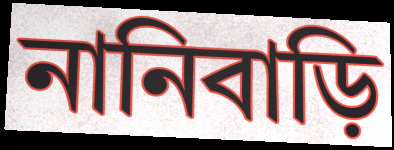
নানিবাড়ি